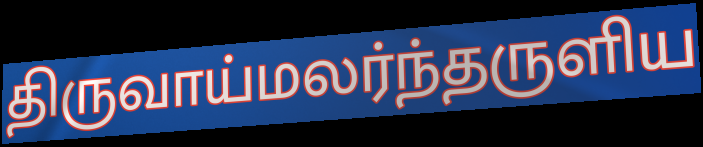
திருவாய்மலர்ந்தருளிய